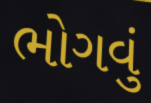
ભોગવું